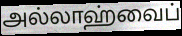
அல்லாஹ்வைப்